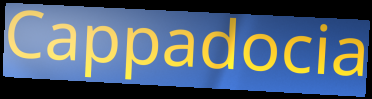
Cappadocia